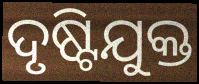
ଦୃଷ୍ଟିଯୁକ୍ତ